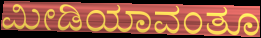
ಮೀಡಿಯಾವಂತೂ